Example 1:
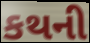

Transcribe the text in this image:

કથની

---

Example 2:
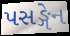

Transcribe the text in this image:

પસઙ્ગેન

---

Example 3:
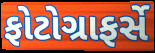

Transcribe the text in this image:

ફોટોગ્રાફર્સે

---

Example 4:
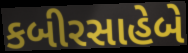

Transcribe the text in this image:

કબીરસાહેબે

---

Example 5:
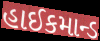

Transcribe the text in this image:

હાઈકમાન્ડ